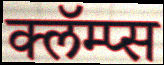
क्लॅम्प्स